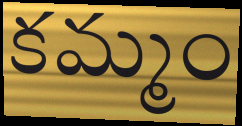
కమ్మం